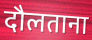
दौलताना